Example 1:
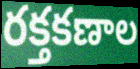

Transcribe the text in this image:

రక్తకణాల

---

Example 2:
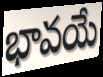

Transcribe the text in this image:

భావయే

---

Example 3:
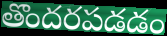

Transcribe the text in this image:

తొందరపడడం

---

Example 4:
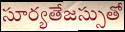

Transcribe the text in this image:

సూర్యతేజస్సుతో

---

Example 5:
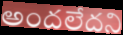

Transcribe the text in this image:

అందలేదని